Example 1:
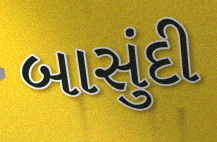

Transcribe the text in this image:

બાસુંદી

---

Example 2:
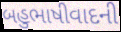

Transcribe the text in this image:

બહુભાષીવાદની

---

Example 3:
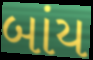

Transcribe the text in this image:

બાંય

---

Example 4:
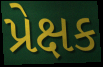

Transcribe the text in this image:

પ્રેક્ષક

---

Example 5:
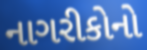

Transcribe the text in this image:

નાગરીકોનો